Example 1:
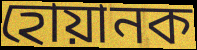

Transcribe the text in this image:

হোয়ানক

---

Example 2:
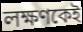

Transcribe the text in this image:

লক্ষণকেই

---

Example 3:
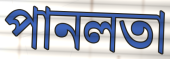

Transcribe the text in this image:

পানলতা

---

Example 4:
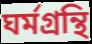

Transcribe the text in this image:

ঘর্মগ্রন্থি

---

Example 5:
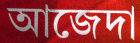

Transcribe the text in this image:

আজেদা